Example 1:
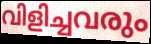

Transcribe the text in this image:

വിളിച്ചവരും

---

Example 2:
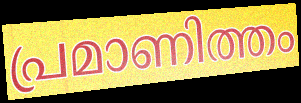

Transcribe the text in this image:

പ്രമാണിത്തം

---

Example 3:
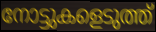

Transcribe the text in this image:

നോട്ടുകളെടുത്ത്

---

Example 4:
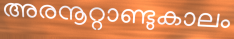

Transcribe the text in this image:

അരനൂറ്റാണ്ടുകാലം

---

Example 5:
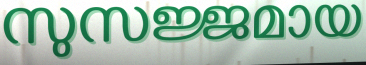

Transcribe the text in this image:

സുസജ്ജമായ